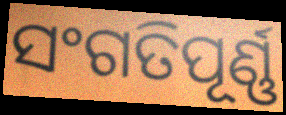
ସଂଗତିପୂର୍ଣ୍ଣ